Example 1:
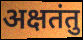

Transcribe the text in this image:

अक्षतंतु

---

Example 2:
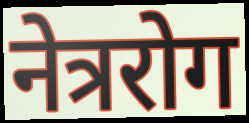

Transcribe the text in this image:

नेत्ररोग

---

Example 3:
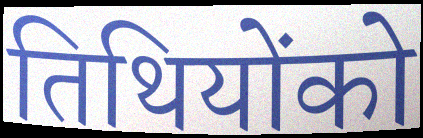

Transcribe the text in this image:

तिथियोंको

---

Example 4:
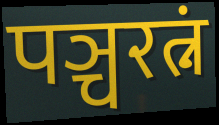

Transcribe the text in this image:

पञ्चरत्नं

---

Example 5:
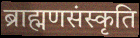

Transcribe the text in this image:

ब्राह्मणसंस्कृति